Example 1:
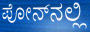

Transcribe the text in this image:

ಪೋನ್‍ನಲ್ಲಿ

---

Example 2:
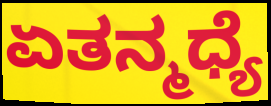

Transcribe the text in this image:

ಏತನ್ಮಧ್ಯೆ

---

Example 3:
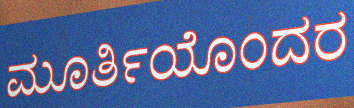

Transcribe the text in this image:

ಮೂರ್ತಿಯೊಂದರ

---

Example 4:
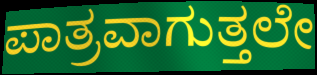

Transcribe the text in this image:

ಪಾತ್ರವಾಗುತ್ತಲೇ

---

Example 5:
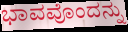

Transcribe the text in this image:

ಭಾವವೊಂದನ್ನು